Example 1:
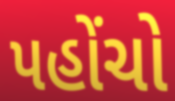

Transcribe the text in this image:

પહોંચો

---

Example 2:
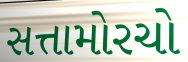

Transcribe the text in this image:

સત્તામોરચો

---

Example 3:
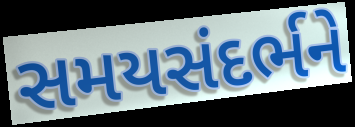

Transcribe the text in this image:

સમયસંદર્ભને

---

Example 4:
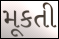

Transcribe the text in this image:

મૂકતી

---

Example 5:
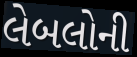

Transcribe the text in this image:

લેબલોની